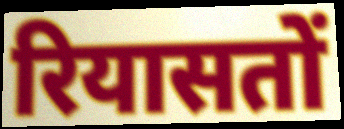
रियासतों